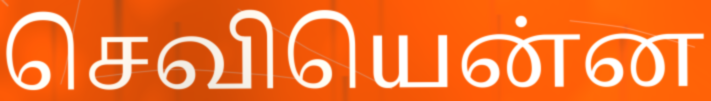
செவியென்ன